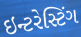
ઇન્ટરેસ્ટિંગ